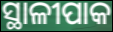
ସ୍ଥାଳୀପାକ